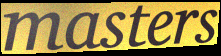
masters